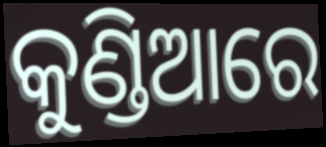
କୁଣ୍ଡିଆରେ